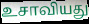
உசாவியது